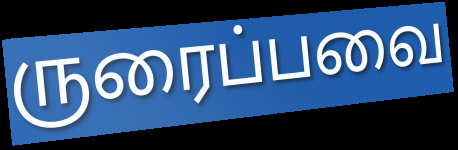
ருரைப்பவை